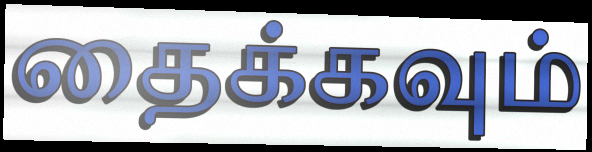
தைக்கவும்